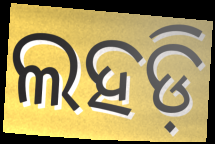
ଲହଡ଼ି